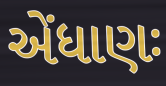
એંધાણઃ